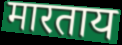
मारताय